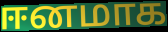
ஈனமாக